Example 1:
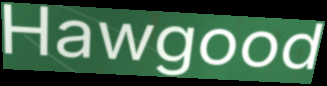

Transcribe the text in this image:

Hawgood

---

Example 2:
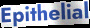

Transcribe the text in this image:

Epithelial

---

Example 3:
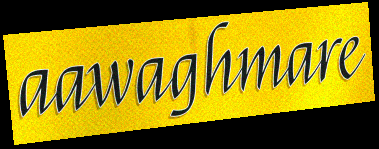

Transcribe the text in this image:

aawaghmare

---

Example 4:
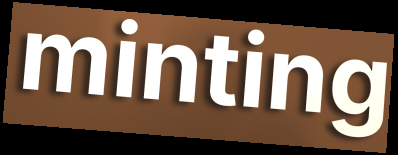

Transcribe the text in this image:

minting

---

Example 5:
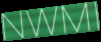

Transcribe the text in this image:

NWMI